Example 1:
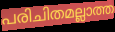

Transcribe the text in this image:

പരിചിതമല്ലാത്ത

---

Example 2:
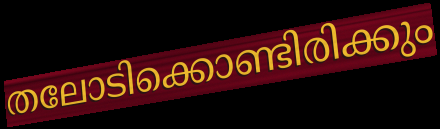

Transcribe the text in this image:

തലോടിക്കൊണ്ടിരിക്കും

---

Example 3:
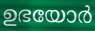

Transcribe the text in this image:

ഉഭയോർ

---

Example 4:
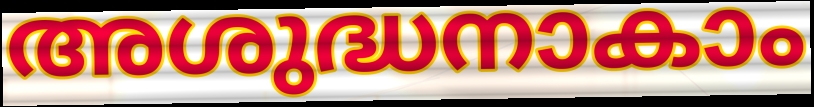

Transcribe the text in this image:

അശുദ്ധനാകാം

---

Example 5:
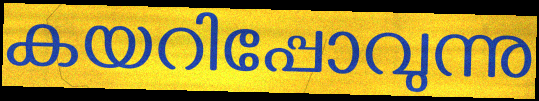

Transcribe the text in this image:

കയറിപ്പോവുന്നു